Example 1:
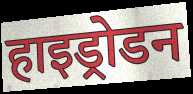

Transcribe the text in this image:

हाइड्रोडन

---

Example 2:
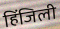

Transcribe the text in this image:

हिंजिली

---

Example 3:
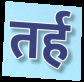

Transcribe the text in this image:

तर्ह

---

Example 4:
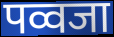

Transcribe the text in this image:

पव्वजा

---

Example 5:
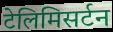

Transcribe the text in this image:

टेलिमिसर्टन